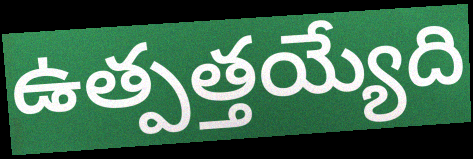
ఉత్పత్తయ్యేది